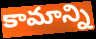
కామాన్ని